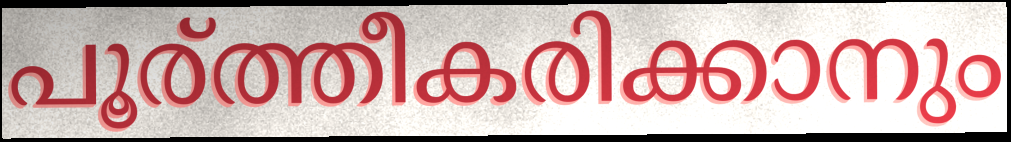
പൂര്ത്തീകരിക്കാനും